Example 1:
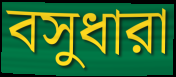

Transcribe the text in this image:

বসুধারা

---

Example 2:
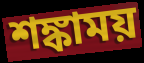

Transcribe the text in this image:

শঙ্কাময়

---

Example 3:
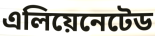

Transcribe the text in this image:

এলিয়েনেটেড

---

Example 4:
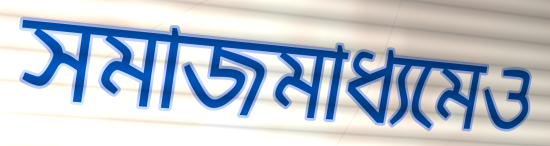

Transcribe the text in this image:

সমাজমাধ্যমেও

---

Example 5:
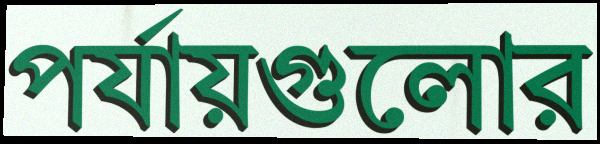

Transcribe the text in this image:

পর্যায়গুলোর